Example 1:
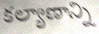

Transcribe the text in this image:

కల్యాణాన్ని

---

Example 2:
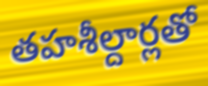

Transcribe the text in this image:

తహశీల్దార్లతో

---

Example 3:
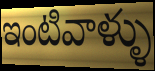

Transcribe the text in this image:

ఇంటివాళ్ళు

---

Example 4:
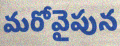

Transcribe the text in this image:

మరోవైపున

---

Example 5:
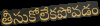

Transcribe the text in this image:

తీసుకోలేకపోవడం